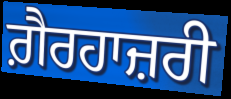
ਗ਼ੈਰਹਾਜ਼ਰੀ